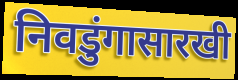
निवडुंगासारखी